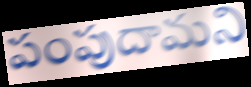
పంపుదామని